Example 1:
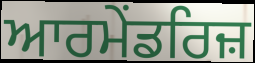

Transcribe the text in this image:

ਆਰਮੇਂਡਰਿਜ਼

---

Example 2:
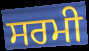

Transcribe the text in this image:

ਸਰਮੀ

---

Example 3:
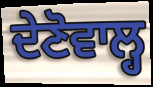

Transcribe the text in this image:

ਦੇਣੋਵਾਲ੍ਹ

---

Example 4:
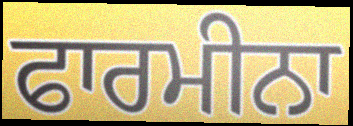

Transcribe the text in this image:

ਫਾਰਮੀਨਾ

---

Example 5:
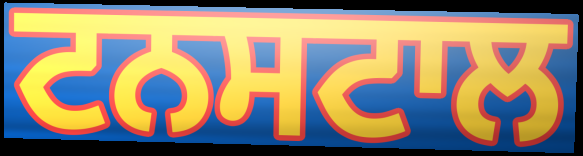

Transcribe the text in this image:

ਟਨਸਟਾਲ